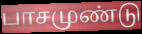
பாசமுண்டு